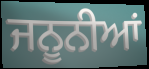
ਜਨੂਨੀਆਂ